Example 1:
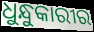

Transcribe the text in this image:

ଧୁନ୍ଧୁକାରୀର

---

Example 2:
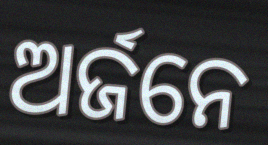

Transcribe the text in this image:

ଅର୍ଜନେ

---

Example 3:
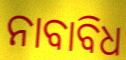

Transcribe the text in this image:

ନାବାବିଧ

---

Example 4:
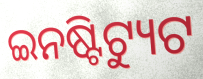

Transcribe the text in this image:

ଇନଷ୍ଟିଟ୍ୟୁଟ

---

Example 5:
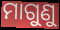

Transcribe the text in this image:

ମାଗୁଣୁ